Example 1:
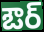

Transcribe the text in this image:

ఔర్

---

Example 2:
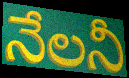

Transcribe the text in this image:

నేలనీ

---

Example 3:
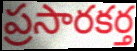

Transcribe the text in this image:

ప్రసారకర్త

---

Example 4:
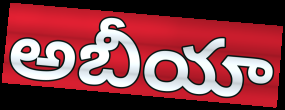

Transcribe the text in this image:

అబీయా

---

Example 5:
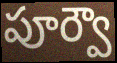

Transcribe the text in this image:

పూర్వౌ